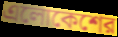
এলোকেশের